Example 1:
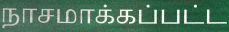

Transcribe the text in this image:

நாசமாக்கப்பட்ட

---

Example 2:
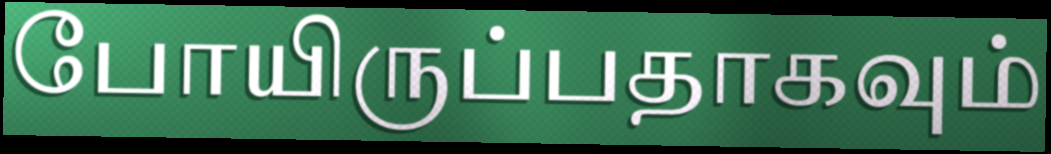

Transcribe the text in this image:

போயிருப்பதாகவும்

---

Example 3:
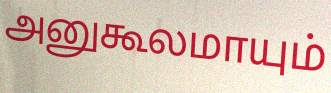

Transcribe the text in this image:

அனுகூலமாயும்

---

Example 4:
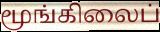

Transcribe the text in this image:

மூங்கிலைப்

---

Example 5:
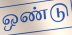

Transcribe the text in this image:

ஒண்டு